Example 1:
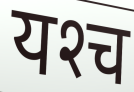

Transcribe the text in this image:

यश्च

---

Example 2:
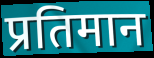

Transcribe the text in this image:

प्रतिमान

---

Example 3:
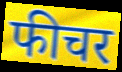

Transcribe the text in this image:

फीचर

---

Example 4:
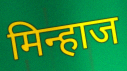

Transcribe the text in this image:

मिन्हाज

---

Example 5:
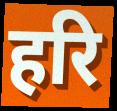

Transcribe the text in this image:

हरि